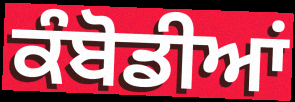
ਕੰਬੋਡੀਆਂ